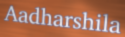
Aadharshila